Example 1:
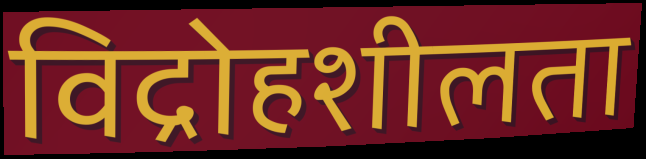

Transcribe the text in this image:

विद्रोहशीलता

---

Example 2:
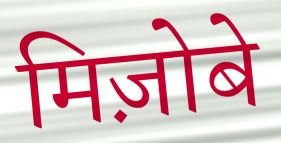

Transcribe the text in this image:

मिज़ोबे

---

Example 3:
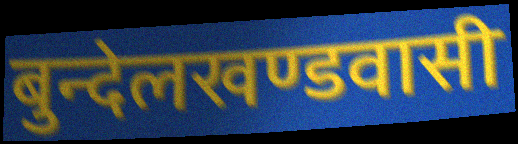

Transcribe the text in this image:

बुन्देलखण्डवासी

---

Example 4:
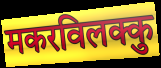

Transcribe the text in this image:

मकरविलक्कु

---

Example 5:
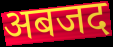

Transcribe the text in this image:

अबजद